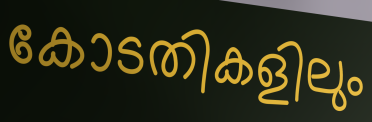
കോടതികളിലും